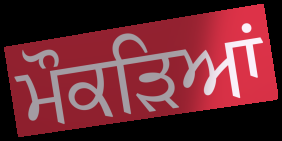
ਮੌਕੜਿਆਂ